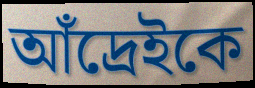
আঁদ্রেইকে